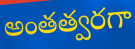
అంతత్వరగా